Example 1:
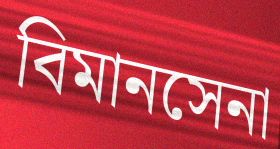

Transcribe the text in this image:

বিমানসেনা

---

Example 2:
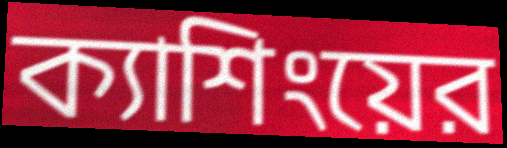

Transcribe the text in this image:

ক্যাশিংয়ের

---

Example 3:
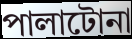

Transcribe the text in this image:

পালাটোনা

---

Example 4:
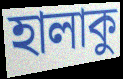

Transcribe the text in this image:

হালাকু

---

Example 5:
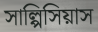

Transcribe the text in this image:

সাল্পিসিয়াস